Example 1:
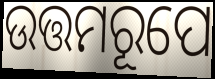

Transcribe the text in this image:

ଉତ୍ତମରୂପେ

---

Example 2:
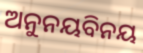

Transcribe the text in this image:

ଅନୁନୟବିନୟ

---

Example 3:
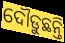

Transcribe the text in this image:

ଦୌଡୁଛନ୍ତି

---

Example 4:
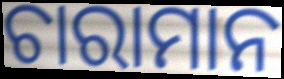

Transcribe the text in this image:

ଚାରାମାନ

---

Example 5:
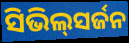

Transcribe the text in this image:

ସିଭିଲ୍‌ସର୍ଜନ